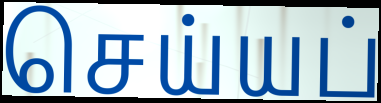
செய்யப்